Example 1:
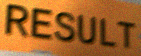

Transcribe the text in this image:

RESULT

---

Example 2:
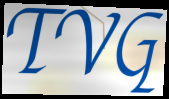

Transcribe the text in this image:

TVG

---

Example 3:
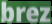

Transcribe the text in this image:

brez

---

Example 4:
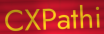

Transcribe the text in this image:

CXPathi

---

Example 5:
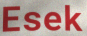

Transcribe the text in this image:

Esek